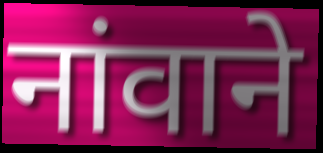
नांवाने